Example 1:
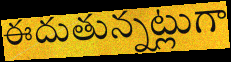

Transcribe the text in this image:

ఈదుతున్నట్లుగా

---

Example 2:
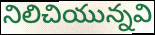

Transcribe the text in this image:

నిలిచియున్నవి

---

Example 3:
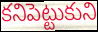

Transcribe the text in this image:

కనిపెట్టుకుని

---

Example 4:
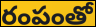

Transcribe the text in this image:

రంపంతో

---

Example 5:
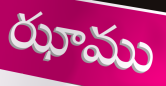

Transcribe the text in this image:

ఝాము